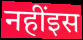
नहींइस